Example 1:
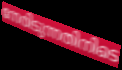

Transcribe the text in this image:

നേരിടുന്നതിനിടെ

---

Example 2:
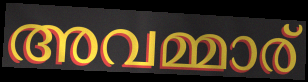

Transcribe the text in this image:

അവമ്മാര്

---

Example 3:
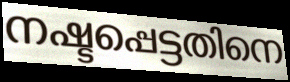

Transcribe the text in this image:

നഷ്ടപ്പെട്ടതിനെ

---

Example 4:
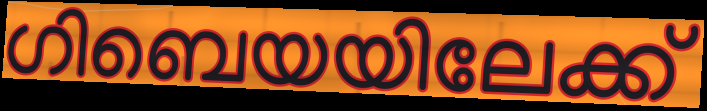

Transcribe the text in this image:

ഗിബെയയിലേക്ക്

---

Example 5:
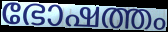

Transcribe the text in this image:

ഭോഷത്തം